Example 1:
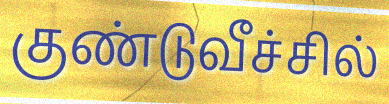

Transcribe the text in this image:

குண்டுவீச்சில்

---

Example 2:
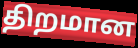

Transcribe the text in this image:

திறமான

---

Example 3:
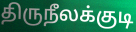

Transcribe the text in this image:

திருநீலக்குடி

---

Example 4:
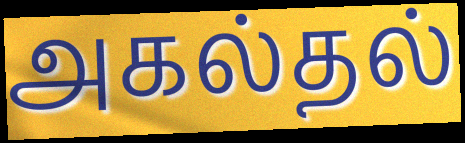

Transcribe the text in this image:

அகல்தல்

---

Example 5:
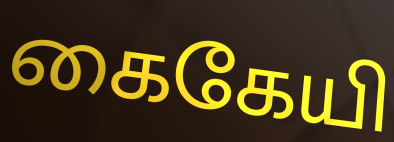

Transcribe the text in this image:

கைகேயி